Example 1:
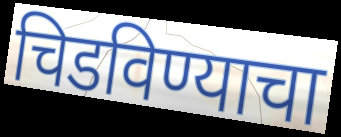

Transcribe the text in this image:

चिडविण्याचा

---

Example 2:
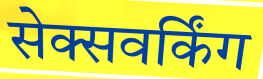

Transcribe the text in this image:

सेक्सवर्किंग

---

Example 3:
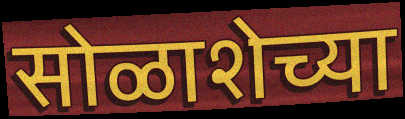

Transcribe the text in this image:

सोळाशेच्या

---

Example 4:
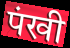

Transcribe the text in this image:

पंखी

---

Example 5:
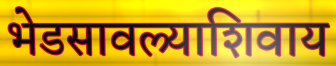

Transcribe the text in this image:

भेडसावल्याशिवाय